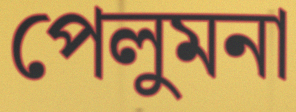
পেলুমনা